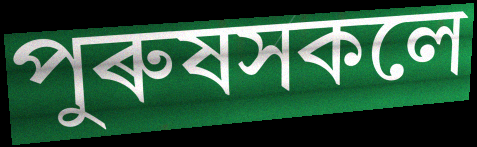
পুৰুষসকলে